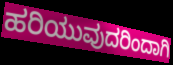
ಹರಿಯುವುದರಿಂದಾಗಿ